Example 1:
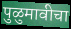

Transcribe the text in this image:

पुळुमावीचा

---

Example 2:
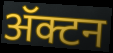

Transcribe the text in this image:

ॲक्टन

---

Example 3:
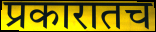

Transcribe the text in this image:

प्रकारातच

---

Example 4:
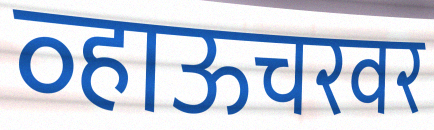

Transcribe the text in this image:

व्हाऊचरवर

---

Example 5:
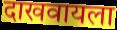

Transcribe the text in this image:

दाखवायला